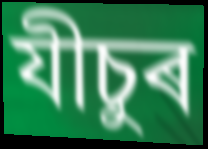
যীচুৰ